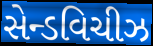
સેન્ડવિચીઝ